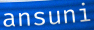
ansuni